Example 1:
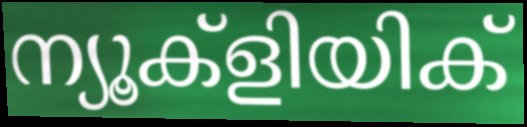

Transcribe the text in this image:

ന്യൂക്ളിയിക്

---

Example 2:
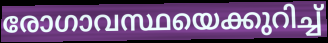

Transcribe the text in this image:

രോഗാവസ്ഥയെക്കുറിച്ച്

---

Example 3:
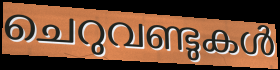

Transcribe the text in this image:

ചെറുവണ്ടുകൾ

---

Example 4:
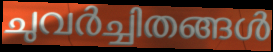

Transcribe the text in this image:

ചുവർച്ചിതങ്ങൾ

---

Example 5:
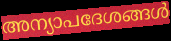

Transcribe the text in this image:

അന്യാപദേശങ്ങൾ